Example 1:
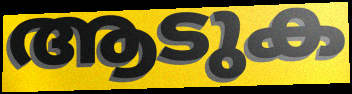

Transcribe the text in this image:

ആടുക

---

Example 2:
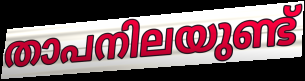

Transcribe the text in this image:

താപനിലയുണ്ട്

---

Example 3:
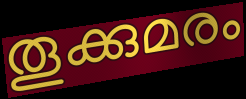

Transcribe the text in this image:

തൂക്കുമരം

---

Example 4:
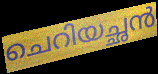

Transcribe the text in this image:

ചെറിയച്ഛൻ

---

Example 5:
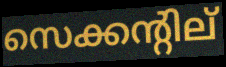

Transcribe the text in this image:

സെക്കന്റില്